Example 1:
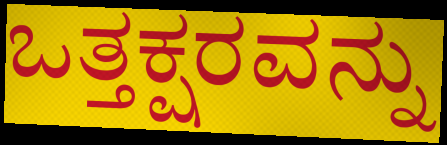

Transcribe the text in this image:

ಒತ್ತಕ್ಷರವನ್ನು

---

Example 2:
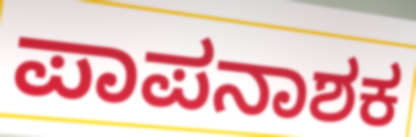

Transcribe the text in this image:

ಪಾಪನಾಶಕ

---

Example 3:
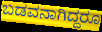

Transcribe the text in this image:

ಬಡವನಾಗಿದ್ದರೂ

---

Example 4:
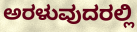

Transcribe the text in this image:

ಅರಳುವುದರಲ್ಲಿ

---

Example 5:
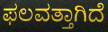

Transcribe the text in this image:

ಫಲವತ್ತಾಗಿದೆ